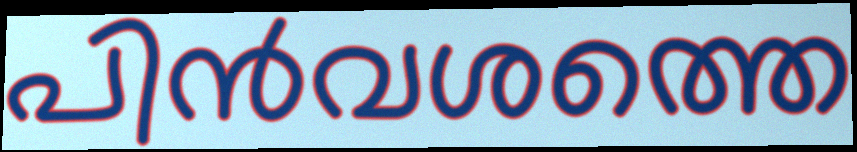
പിൻവശത്തെ